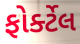
ફોર્ક્ટેલ